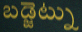
బడ్జెట్ను